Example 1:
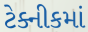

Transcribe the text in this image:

ટેક્નીકમાં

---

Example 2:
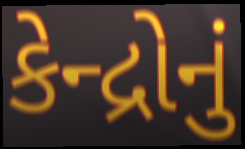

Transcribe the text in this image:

કેન્દ્રોનું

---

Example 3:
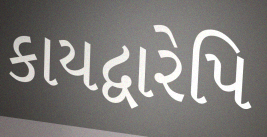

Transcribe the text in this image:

કાયદ્વારેપિ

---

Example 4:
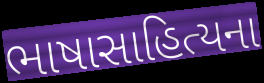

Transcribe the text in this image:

ભાષાસાહિત્યના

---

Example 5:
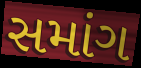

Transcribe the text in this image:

સમાંગ